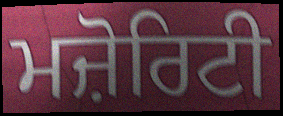
ਮਜ਼ੋਰਿਟੀ